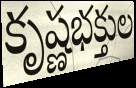
కృష్ణభక్తుల